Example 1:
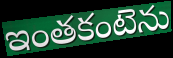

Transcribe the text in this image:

ఇంతకంటెను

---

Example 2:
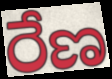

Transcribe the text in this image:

రేణ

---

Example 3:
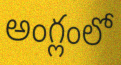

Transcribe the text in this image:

అంగ్లంలో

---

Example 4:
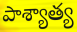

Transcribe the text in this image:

పాశ్యాత్య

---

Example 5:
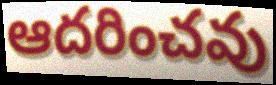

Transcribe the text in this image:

ఆదరించవు